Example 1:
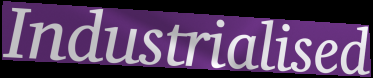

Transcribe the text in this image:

Industrialised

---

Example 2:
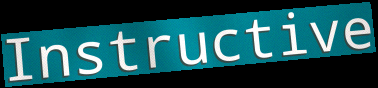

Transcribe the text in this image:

Instructive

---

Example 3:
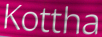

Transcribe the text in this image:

Kottha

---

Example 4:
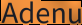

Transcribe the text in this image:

Adenu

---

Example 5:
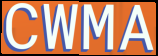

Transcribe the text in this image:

CWMA